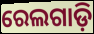
ରେଲଗାଡ଼ି